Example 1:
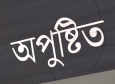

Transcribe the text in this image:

অপুষ্টিত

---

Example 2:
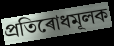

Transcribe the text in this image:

প্ৰতিৰোধমূলক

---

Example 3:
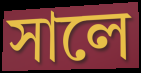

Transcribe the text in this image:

সালে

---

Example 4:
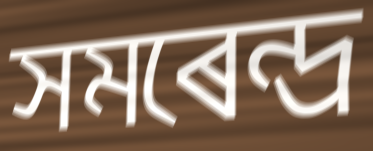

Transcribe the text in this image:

সমৰেন্দ্ৰ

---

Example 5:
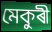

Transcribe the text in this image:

মেকুৰী